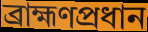
ব্রাহ্মণপ্রধান